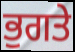
ਭੁਗਤੇ